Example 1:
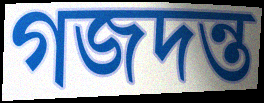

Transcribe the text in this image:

গজদন্ত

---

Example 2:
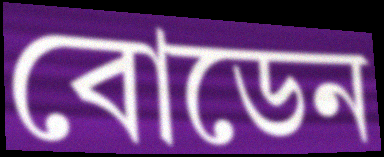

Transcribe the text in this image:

বোডেন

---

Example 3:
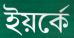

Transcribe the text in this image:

ইয়র্কে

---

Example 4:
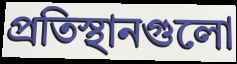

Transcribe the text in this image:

প্রতিস্থানগুলো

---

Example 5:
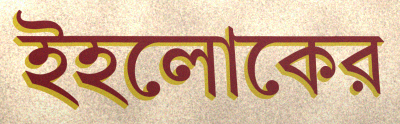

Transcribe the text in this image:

ইহলোকের